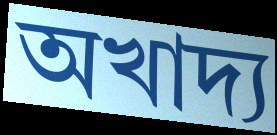
অখাদ্য